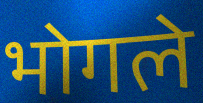
भोगले